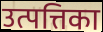
उत्पत्तिका